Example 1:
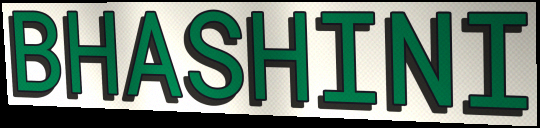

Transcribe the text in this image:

BHASHINI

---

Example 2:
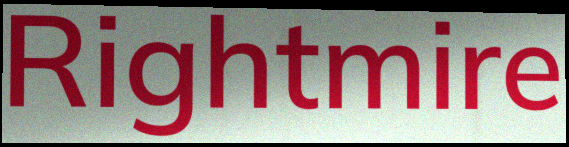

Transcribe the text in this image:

Rightmire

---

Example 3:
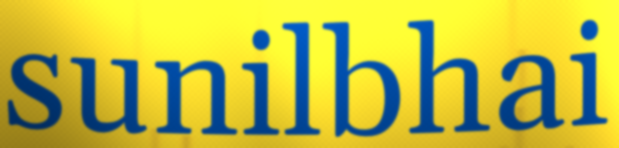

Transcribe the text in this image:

sunilbhai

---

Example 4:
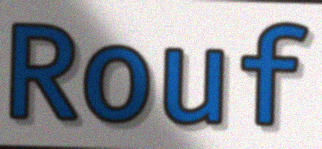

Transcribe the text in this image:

Rouf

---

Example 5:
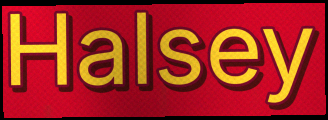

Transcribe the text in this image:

Halsey